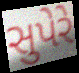
સુપેરે